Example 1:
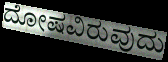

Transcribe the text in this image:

ದೋಷವಿರುವುದು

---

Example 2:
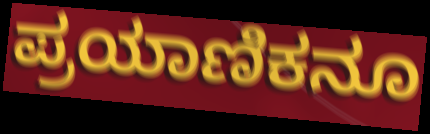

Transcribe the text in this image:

ಪ್ರಯಾಣಿಕನೂ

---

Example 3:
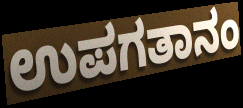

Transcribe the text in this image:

ಉಪಗತಾನಂ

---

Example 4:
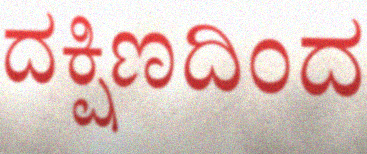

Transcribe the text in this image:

ದಕ್ಷಿಣದಿಂದ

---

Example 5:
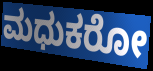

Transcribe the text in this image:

ಮಧುಕರೋ